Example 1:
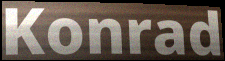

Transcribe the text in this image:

Konrad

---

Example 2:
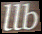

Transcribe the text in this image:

llb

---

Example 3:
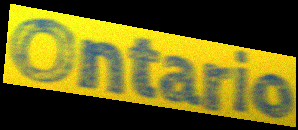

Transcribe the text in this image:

Ontario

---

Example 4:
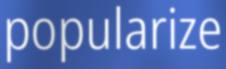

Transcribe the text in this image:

popularize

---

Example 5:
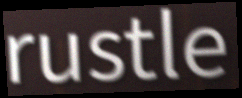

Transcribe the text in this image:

rustle